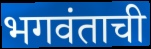
भगवंताची